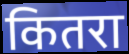
कितरा